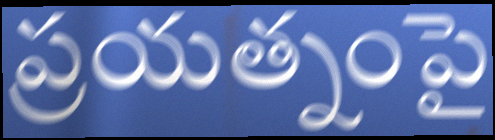
ప్రయత్నంపై